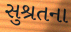
સુશ્રતના